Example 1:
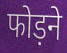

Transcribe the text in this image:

फोड़ने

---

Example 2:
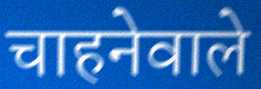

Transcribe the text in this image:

चाहनेवाले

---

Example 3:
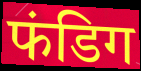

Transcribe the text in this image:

फंडिग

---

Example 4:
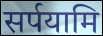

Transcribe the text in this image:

सर्पयामि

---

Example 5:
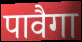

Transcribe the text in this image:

पावैगा